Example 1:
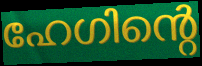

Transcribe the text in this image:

ഹേഗിന്റെ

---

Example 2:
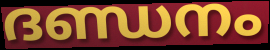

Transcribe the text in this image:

ദണ്ഡനം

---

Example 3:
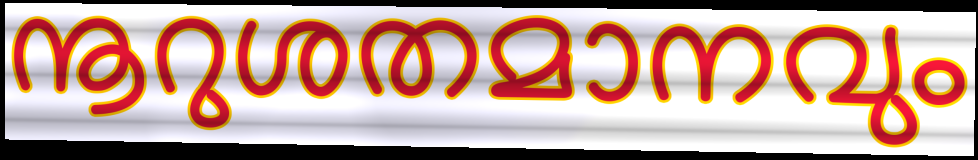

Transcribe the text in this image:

നൂറുശതമാനവും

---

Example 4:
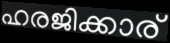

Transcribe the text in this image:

ഹരജിക്കാര്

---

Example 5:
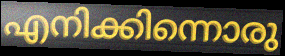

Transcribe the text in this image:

എനിക്കിന്നൊരു